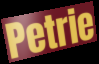
Petrie